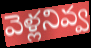
వెళ్లనివ్వ